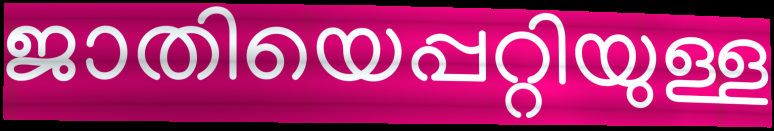
ജാതിയെപ്പറ്റിയുള്ള